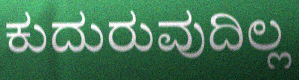
ಕುದುರುವುದಿಲ್ಲ